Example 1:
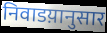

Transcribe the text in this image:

निवाडय़ानुसार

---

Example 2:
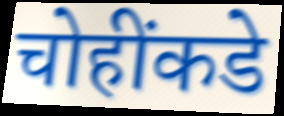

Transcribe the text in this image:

चोहींकडे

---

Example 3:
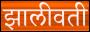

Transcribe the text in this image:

झालीवती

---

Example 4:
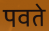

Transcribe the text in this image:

पवते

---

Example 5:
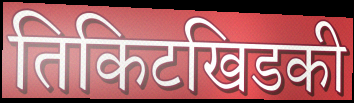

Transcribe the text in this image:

तिकिटखिडकी